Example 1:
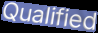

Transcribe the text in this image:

Qualified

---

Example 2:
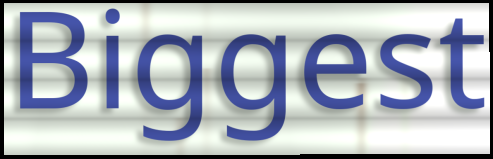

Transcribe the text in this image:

Biggest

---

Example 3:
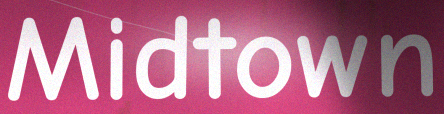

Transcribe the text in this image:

Midtown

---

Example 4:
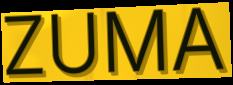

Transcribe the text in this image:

ZUMA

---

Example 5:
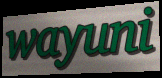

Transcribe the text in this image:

wayuni